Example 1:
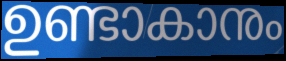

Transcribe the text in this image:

ഉണ്ടാകാനും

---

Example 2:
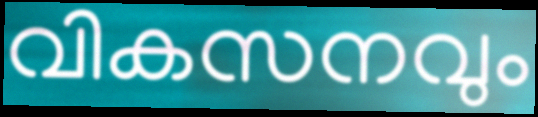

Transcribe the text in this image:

വികസനവും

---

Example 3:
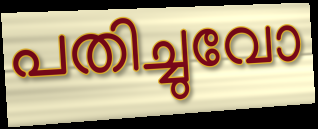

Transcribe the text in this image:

പതിച്ചുവോ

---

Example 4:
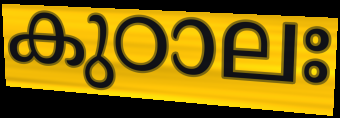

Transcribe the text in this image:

കുഠാലഃ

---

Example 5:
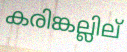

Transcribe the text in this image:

കരിങ്കല്ലില്